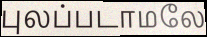
புலப்படாமலே